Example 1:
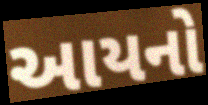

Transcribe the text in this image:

આયનો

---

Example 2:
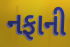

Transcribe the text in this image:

નફાની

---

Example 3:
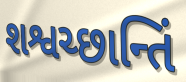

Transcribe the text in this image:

શશ્વચ્છાન્તિં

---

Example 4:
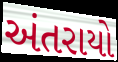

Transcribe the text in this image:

અંતરાયો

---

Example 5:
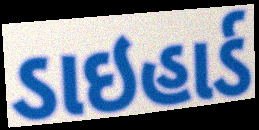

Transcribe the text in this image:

ડાઇહાર્ડ